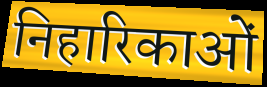
निहारिकाओं